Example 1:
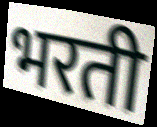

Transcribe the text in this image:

भरती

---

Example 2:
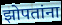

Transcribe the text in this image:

झोपतांना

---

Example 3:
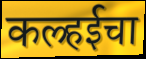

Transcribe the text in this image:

कल्हईचा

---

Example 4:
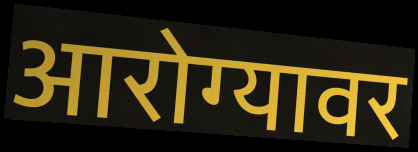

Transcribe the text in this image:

आरोग्यावर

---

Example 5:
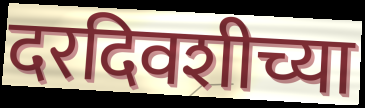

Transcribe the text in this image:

दरदिवशीच्या